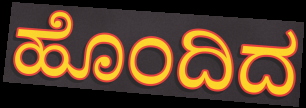
ಹೊಂದಿದ